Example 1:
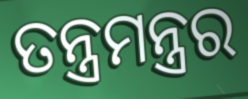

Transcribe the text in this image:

ତନ୍ତ୍ରମନ୍ତ୍ରର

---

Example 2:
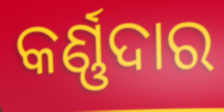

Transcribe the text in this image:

କର୍ଣ୍ଣଦାର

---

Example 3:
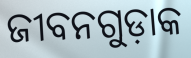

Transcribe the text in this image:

ଜୀବନଗୁଡ଼ାକ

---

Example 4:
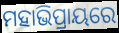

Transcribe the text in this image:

ମହାଭିପ୍ରାୟରେ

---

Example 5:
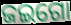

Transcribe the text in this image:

ଜଇଗୋ